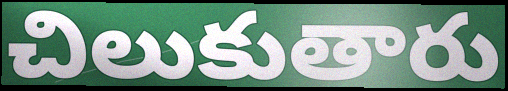
చిలుకుతారు